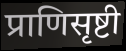
प्राणिसृष्टी